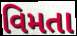
વિમતા